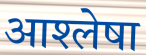
आश्‍लेषा